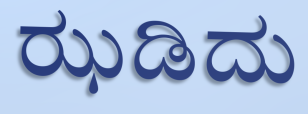
ಝಡಿದು